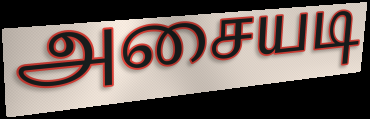
அசையடி